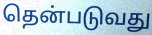
தென்படுவது